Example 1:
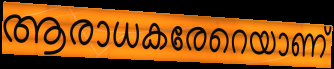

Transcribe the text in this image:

ആരാധകരേറെയാണ്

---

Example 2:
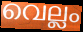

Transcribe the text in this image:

വെല്ലം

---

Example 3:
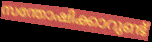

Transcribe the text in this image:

സന്തോഷിക്കാറുണ്ട്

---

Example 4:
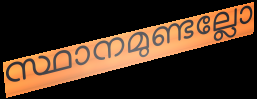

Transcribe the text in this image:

സ്ഥാനമുണ്ടല്ലോ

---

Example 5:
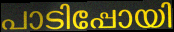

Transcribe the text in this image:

പാടിപ്പോയി